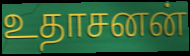
உதாசனன்